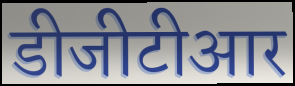
डीजीटीआर